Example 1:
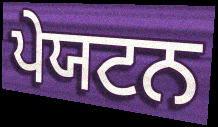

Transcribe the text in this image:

ਪੇਯਟਨ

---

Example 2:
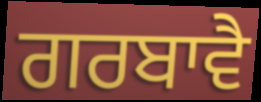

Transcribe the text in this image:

ਗਰਬਾਵੈ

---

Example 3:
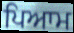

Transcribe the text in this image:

ਪਿਆਮ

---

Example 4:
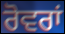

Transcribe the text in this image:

ਰੋਵਰਾਂ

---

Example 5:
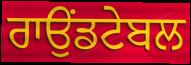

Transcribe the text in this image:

ਰਾਉਂਡਟੇਬਲ